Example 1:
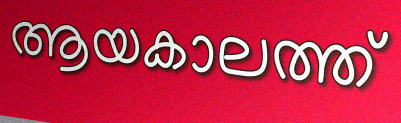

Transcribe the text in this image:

ആയകാലത്ത്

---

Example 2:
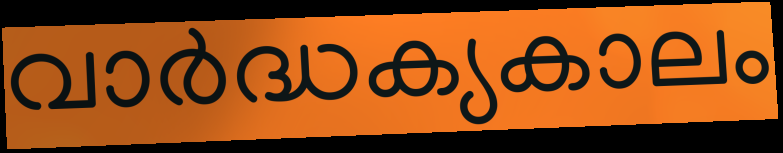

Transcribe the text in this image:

വാർദ്ധക്യകാലം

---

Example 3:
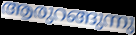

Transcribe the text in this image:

ആരുറങ്ങുന്നു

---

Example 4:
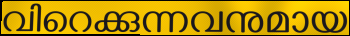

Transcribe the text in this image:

വിറെക്കുന്നവനുമായ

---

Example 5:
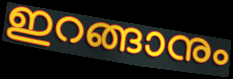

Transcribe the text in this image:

ഇറങ്ങാനും